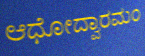
ಆಧೋದ್ವಾರಮಂ